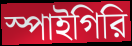
স্পাইগিরি